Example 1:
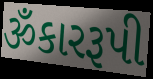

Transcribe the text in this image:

ૐકારરૂપી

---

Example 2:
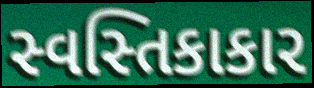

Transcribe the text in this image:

સ્વસ્તિકાકાર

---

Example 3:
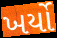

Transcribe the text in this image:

ખર્યો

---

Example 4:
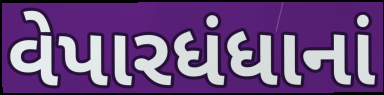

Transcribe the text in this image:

વેપારધંધાનાં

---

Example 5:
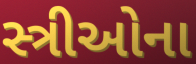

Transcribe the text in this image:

સ્ત્રીઓના